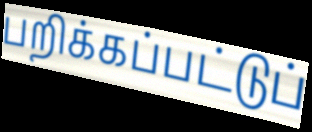
பறிக்கப்பட்டுப்